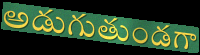
అడుగుతుండగా